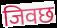
जिवछ